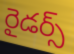
రైడర్స్